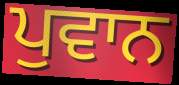
ਪੁਵਾਨ